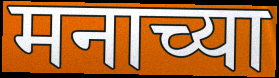
मनाच्या